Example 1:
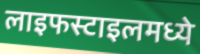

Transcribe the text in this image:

लाइफस्टाइलमध्ये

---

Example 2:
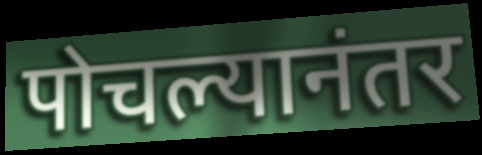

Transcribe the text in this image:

पोचल्यानंतर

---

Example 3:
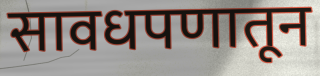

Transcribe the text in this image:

सावधपणातून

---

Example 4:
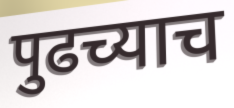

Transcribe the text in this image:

पुढच्याच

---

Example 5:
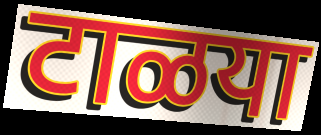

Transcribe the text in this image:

टाळया